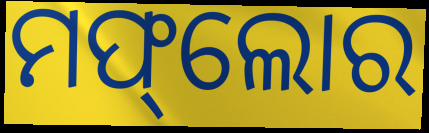
ମଫ୍‌ଲୋର